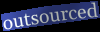
outsourced